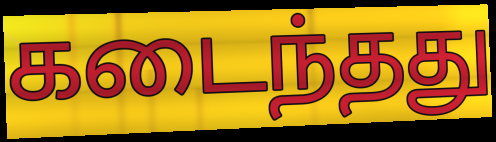
கடைந்தது